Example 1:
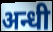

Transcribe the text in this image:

अन्धी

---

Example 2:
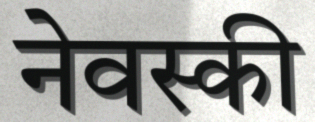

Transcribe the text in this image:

नेवस्की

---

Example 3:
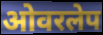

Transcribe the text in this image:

ओवरलेप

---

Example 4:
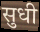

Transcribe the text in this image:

सुधी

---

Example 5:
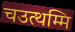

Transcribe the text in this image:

चउत्थम्मि